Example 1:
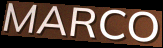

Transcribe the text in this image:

MARCO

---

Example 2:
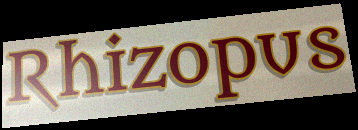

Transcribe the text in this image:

Rhizopus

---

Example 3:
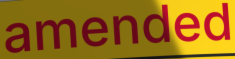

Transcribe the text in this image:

amended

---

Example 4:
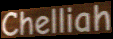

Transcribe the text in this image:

Chelliah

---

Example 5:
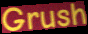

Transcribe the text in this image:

Grush